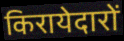
किरायेदारों